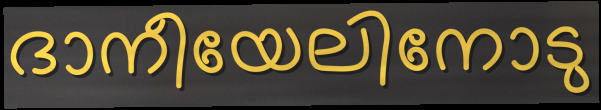
ദാനീയേലിനോടു